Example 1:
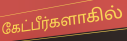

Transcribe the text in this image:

கேட்பீர்களாகில்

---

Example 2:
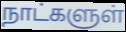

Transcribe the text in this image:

நாட்களுள்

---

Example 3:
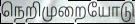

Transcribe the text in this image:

நெறிமுறையோடு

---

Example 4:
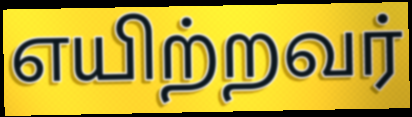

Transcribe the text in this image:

எயிற்றவர்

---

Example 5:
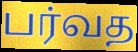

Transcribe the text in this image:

பர்வத